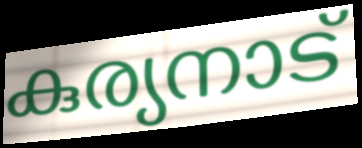
കുര്യനാട്